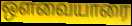
ஔவையாரை